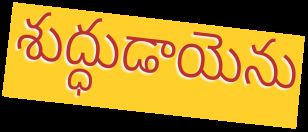
శుద్ధుడాయెను